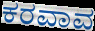
ಕರವಾವ